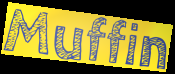
Muffin